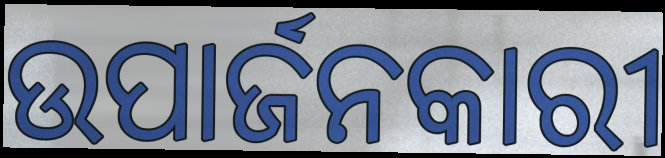
ଉପାର୍ଜନକାରୀ